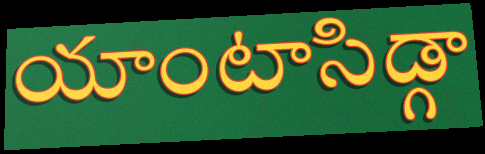
యాంటాసిడ్గా